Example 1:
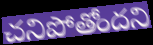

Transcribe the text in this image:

చనిపోతోందని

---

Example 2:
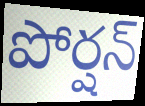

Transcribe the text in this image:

పోర్షన్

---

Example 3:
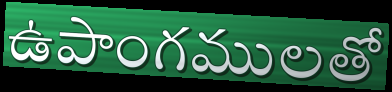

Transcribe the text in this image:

ఉపాంగములతో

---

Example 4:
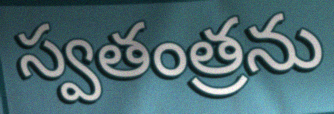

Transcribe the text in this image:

స్వతంత్రను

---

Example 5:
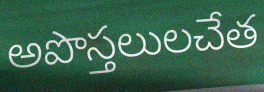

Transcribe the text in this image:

అపొస్తలులచేత